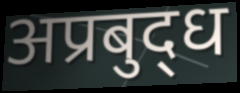
अप्रबुद्ध